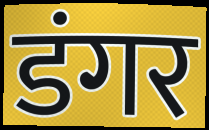
डंगर